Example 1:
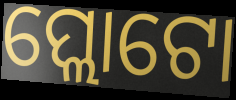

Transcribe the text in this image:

ପ୍ଲୋଟୋ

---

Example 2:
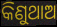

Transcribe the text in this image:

କିଣୁଥାଅ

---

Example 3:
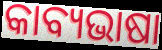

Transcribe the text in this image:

କାବ୍ୟଭାଷା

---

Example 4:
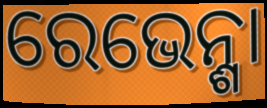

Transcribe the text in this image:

ରେଭେନ୍ଶା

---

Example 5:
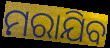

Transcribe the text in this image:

ମରାଯିବ